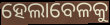
ହେଲାବେଳକୁ